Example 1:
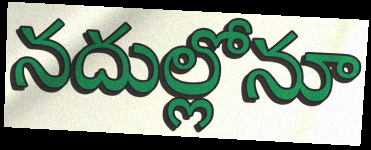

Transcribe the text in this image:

నదుల్లోనూ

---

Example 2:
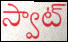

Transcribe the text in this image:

స్వాట్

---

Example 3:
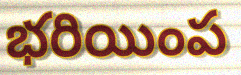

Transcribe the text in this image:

భరియింప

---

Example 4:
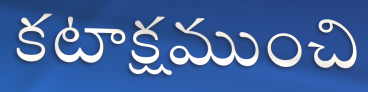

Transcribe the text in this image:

కటాక్షముంచి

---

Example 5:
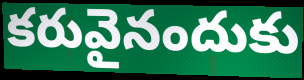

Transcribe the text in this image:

కరువైనందుకు